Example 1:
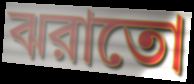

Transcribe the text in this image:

ঝরাতো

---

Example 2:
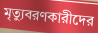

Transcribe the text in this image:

মৃত্যুবরণকারীদের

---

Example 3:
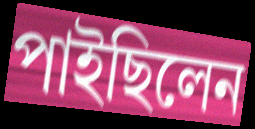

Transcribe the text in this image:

পাইছিলেন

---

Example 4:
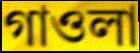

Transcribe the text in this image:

গাওলা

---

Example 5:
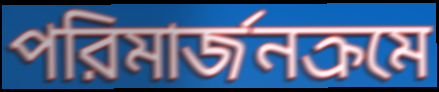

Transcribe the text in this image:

পরিমার্জনক্রমে